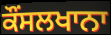
ਕੌਂਸਲਖਾਨਾ